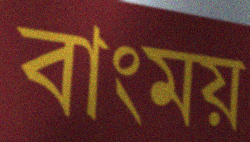
বাংময়